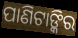
ପାଣିଟାଙ୍କିର